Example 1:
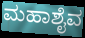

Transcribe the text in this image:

ಮಹಾಶೈವ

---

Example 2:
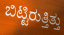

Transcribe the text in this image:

ಬಿಟ್ಟಿರುತ್ತಿತ್ತು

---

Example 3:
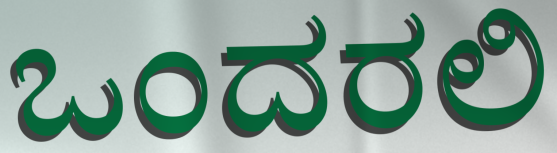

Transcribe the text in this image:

ಒಂದರಲಿ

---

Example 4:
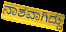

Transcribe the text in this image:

ನಾಶವಾಗಿದ್ದು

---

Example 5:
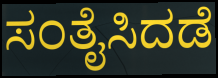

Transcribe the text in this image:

ಸಂತೈಸಿದಡೆ